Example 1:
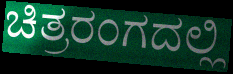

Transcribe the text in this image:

ಚಿತ್ರರಂಗದಲ್ಲಿ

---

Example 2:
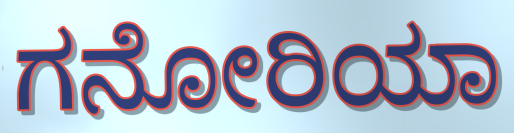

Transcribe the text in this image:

ಗನೋರಿಯಾ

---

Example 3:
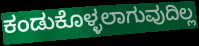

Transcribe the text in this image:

ಕಂಡುಕೊಳ್ಳಲಾಗುವುದಿಲ್ಲ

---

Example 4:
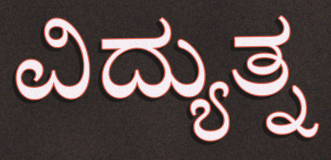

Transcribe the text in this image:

ವಿದ್ಯುತ್ನ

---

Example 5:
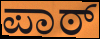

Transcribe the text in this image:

ಪಾಠ್